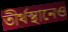
তীর্থস্থানেও